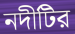
নদীটির